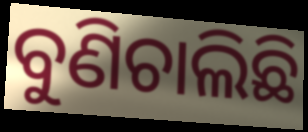
ବୁଣିଚାଲିଛି